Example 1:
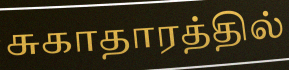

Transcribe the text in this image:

சுகாதாரத்தில்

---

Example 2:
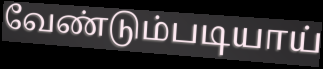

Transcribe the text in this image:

வேண்டும்படியாய்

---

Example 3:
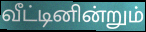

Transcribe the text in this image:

வீட்டினின்றும்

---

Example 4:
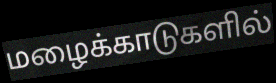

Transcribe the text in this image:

மழைக்காடுகளில்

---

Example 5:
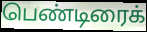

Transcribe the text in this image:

பெண்டிரைக்